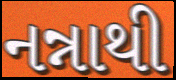
નન્નાથી